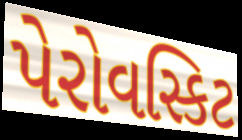
પેરોવસ્કિટ